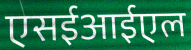
एसईआईएल